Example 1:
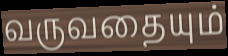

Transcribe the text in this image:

வருவதையும்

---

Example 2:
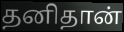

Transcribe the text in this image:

தனிதான்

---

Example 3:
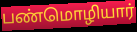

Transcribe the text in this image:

பண்மொழியார்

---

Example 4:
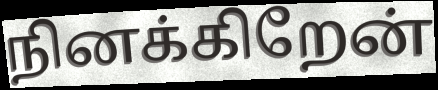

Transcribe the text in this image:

நினக்கிறேன்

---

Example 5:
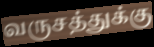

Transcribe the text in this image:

வருசத்துக்கு